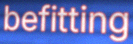
befitting